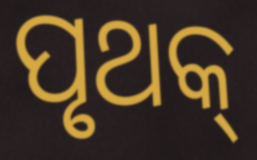
ପୃଥକ୍